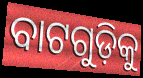
ବାଟଗୁଡ଼ିକୁ